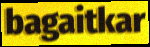
bagaitkar